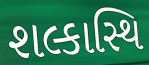
શલ્કાસ્થિ